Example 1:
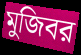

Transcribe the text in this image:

মুজিবর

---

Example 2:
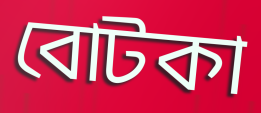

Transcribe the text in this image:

বোটকা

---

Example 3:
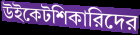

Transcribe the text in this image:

উইকেটশিকারিদের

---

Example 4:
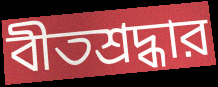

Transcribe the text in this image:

বীতশ্রদ্ধার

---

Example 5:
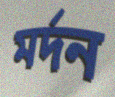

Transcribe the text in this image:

মর্দন